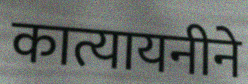
कात्यायनीने